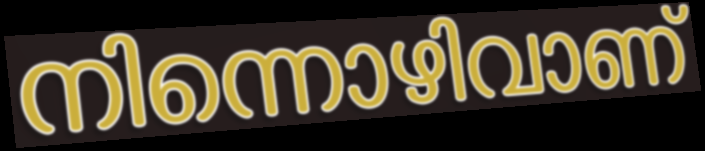
നിന്നൊഴിവാണ്